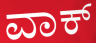
ವಾಕ್